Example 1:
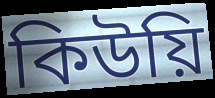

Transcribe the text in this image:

কিউয়ি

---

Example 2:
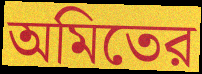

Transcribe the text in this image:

অমিতের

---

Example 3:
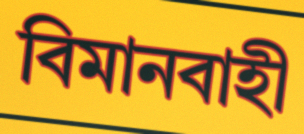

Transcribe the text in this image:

বিমানবাহী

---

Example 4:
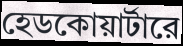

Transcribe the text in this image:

হেডকোয়ার্টারে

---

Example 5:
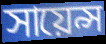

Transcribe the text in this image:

সায়েন্স